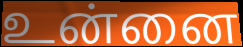
உன்னை